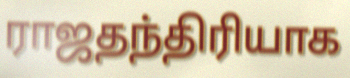
ராஜதந்திரியாக